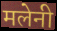
मलेनी